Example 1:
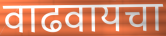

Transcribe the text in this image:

वाढवायचा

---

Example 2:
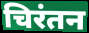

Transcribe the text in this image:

चिरंतन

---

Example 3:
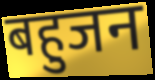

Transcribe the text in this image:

बहुजन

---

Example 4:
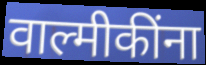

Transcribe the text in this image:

वाल्मीकींना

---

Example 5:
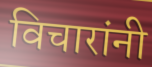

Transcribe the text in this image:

विचारांनी